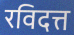
रविदत्त